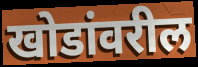
खोडांवरील